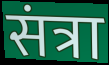
संत्रा